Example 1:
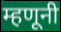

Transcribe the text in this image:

म्हणूनी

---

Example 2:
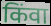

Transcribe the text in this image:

किंवा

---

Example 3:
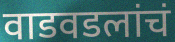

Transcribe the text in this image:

वाडवडलांचं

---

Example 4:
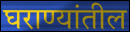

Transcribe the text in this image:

घराण्यांतील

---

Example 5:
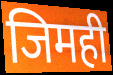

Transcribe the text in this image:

जिमही